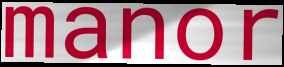
manor